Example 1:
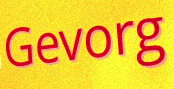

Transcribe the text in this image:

Gevorg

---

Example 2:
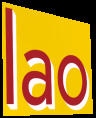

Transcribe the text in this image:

lao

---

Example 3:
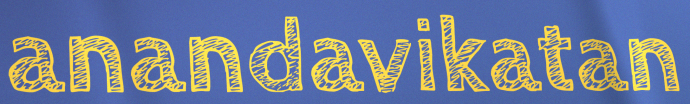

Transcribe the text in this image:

anandavikatan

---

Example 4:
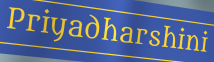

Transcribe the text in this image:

Priyadharshini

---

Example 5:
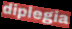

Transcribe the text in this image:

diplegia